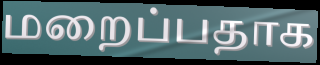
மறைப்பதாக